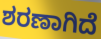
ಶರಣಾಗಿದೆ